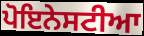
ਪੋਇਨੇਸਟੀਆ